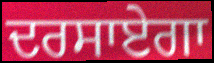
ਦਰਸਾਏਗਾ